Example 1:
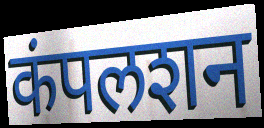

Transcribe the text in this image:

कंपलशन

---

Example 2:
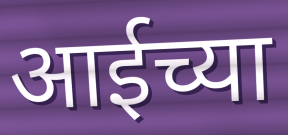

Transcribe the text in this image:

आईच्या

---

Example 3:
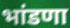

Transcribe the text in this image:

भांडणा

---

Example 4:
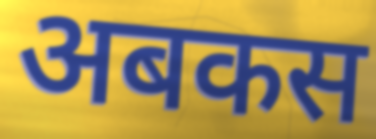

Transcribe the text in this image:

अबकस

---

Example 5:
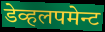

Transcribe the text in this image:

डेव्हलपमेन्ट